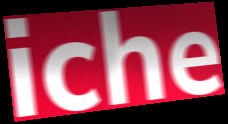
iche